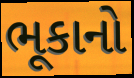
ભૂકાનો